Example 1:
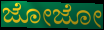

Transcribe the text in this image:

ಜೋಜೋ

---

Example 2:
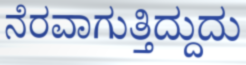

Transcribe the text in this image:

ನೆರವಾಗುತ್ತಿದ್ದುದು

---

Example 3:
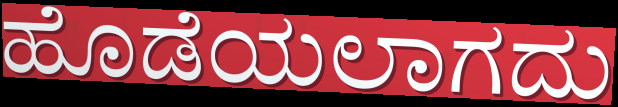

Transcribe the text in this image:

ಹೊಡೆಯಲಾಗದು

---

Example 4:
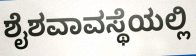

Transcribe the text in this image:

ಶೈಶವಾವಸ್ಥೆಯಲ್ಲಿ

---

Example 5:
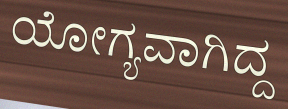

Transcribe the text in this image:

ಯೋಗ್ಯವಾಗಿದ್ದ